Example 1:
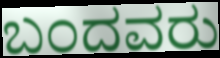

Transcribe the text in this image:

ಬಂದವರು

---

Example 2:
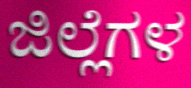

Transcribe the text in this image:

ಜಿಲ್ಲೆಗಳ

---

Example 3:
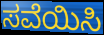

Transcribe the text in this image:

ಸವೆಯಿಸಿ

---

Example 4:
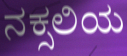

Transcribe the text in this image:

ನಕ್ಸಲಿಯ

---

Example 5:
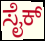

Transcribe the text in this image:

ಸೈಕ್